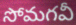
సోమగవీ